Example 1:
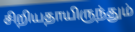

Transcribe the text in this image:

சிறியதாயிருந்தும்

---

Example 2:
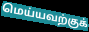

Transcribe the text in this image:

மெய்யவற்குக்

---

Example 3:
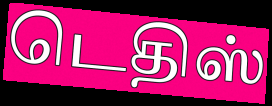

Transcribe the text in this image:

டெதிஸ்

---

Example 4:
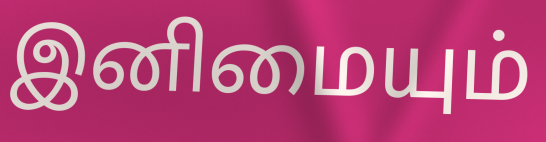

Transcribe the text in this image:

இனிமையும்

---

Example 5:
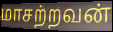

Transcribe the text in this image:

மாசற்றவன்